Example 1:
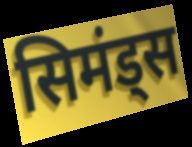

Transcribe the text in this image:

सिमंड्स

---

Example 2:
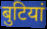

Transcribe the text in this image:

बुटियां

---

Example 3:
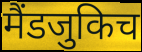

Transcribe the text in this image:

मैंडजुकिच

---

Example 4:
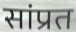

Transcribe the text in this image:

सांप्रत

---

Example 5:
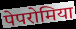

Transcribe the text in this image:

पेपरोमिया